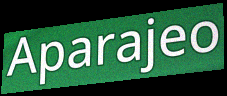
Aparajeo